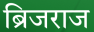
ब्रिजराज